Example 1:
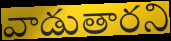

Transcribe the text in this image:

వాడుతారని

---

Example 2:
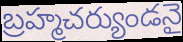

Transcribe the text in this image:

బ్రహ్మచర్యుండనై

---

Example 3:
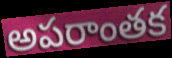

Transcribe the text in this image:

అపరాంతక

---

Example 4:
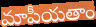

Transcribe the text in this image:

మాపీయతాం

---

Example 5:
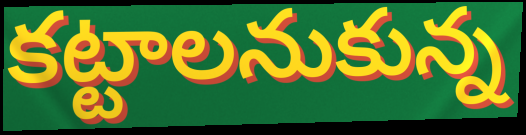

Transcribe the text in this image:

కట్టాలనుకున్న